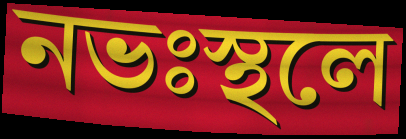
নভঃস্থলে